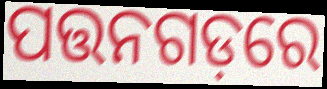
ପତ୍ତନଗଡ଼ରେ